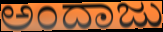
ಅಂದಾಜು